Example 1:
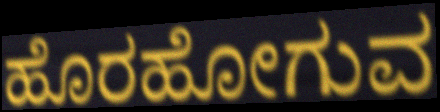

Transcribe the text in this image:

ಹೊರಹೋಗುವ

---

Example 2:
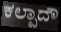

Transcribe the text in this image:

ಕಲ್ಪಾದೌ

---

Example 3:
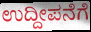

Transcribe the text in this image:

ಉದ್ದೀಪನೆಗೆ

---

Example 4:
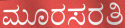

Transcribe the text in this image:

ಮೂರಸರತಿ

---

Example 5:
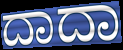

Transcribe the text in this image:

ದಾದಾ